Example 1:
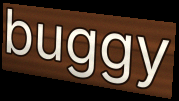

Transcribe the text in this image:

buggy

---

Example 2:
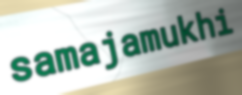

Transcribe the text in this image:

samajamukhi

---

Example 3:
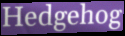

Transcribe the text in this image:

Hedgehog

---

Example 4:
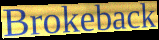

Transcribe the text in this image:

Brokeback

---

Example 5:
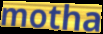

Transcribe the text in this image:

motha